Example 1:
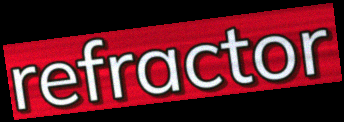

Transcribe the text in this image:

refractor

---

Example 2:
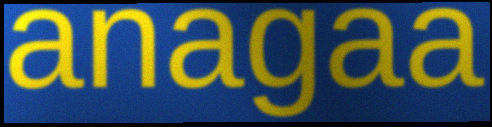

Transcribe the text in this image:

anagaa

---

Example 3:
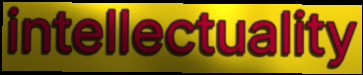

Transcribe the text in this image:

intellectuality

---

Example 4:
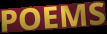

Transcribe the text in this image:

POEMS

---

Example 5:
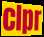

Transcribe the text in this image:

clpr